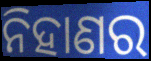
ନିହାଣର